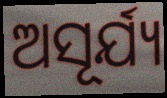
ଅସୂର୍ଯ୍ୟ